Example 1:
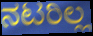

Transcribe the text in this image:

ನಟರಿಲ್ಲ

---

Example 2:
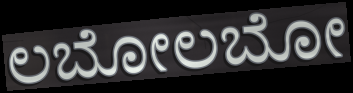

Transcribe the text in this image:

ಲಬೋಲಬೋ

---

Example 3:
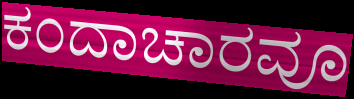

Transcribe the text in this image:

ಕಂದಾಚಾರವೂ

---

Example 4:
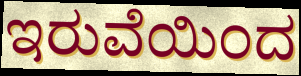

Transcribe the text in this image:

ಇರುವೆಯಿಂದ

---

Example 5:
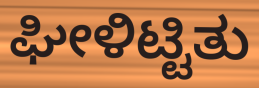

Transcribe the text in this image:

ಘೀಳಿಟ್ಟಿತು